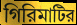
গিরিমাটির